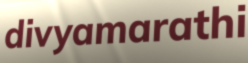
divyamarathi